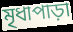
মৃধাপাড়া